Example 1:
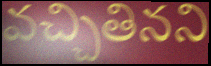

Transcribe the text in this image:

వచ్చితినని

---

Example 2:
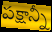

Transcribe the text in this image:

పక్షాన్నీ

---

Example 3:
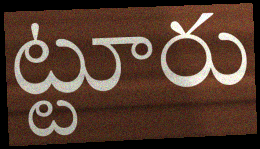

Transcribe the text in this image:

ట్టూరు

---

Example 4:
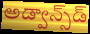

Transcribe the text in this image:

అడ్వాన్స్‌డ్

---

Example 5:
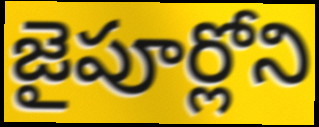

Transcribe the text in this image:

జైపూర్లోని